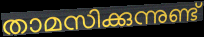
താമസിക്കുന്നുണ്ട്